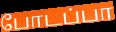
போடப்பா